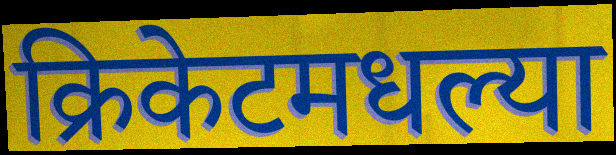
क्रिकेटमधल्या